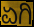
ಏಗಿ